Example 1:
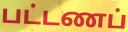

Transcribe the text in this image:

பட்டணப்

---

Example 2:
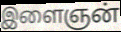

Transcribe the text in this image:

இளைஞன்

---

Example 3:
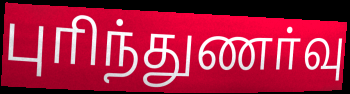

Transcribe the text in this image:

புரிந்துணர்வு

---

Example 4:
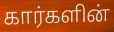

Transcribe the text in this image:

கார்களின்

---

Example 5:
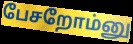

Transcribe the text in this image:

பேசறோம்னு